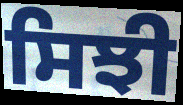
ਸਿਝੀ